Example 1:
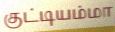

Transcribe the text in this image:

குட்டியம்மா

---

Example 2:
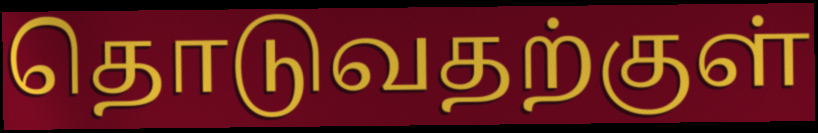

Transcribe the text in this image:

தொடுவதற்குள்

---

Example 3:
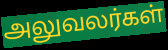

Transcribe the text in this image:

அலுவலர்கள்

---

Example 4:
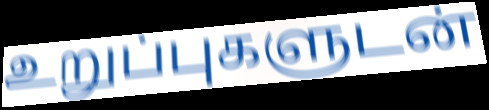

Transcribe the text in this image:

உறுப்புகளுடன்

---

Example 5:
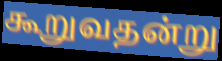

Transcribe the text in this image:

கூறுவதன்று